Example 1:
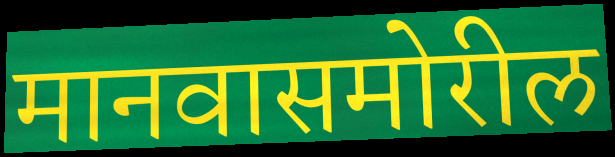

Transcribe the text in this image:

मानवासमोरील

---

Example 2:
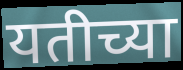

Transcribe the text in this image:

यतीच्या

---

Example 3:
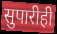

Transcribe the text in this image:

सुपारीही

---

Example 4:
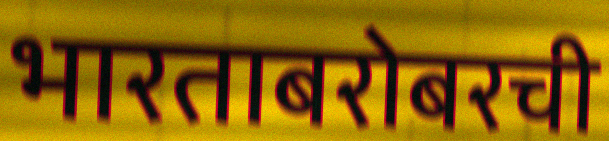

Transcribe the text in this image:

भारताबरोबरची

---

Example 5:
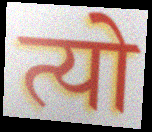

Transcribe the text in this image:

त्यो